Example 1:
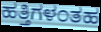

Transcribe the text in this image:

ಹತ್ತಿಗಳಂತಹ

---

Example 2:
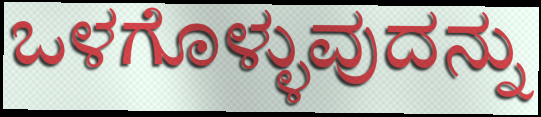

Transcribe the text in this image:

ಒಳಗೊಳ್ಳುವುದನ್ನು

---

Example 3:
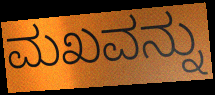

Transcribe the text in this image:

ಮಖವನ್ನು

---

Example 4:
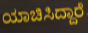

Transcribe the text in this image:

ಯಾಚಿಸಿದ್ದಾರೆ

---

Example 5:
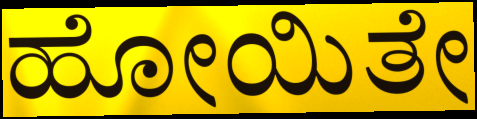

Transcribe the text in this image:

ಹೋಯಿತೇ